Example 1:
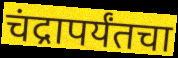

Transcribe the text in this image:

चंद्रापर्यंतचा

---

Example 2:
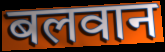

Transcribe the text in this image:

बलवान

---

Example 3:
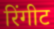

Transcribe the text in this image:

रिंगीट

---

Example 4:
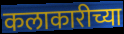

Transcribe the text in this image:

कलाकारीच्या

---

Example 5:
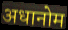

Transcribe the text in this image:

अधानोम